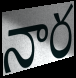
నార